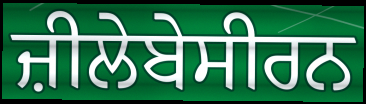
ਜ਼ੀਲੇਬੇਸੀਰਨ